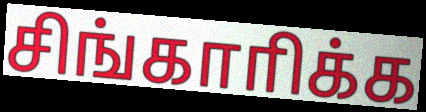
சிங்காரிக்க